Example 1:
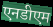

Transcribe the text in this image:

एनडीएम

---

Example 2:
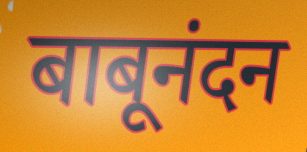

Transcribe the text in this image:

बाबूनंदन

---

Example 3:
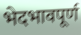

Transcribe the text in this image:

भेदभावपूर्ण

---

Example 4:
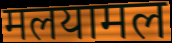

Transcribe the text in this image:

मलयामल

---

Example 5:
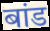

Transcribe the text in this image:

बांड